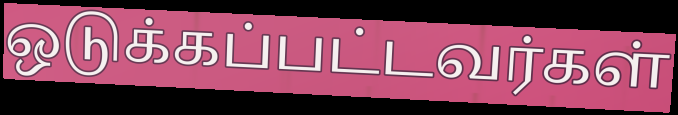
ஒடுக்கப்பட்டவர்கள்